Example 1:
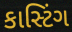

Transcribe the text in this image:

કાસ્ટિંગ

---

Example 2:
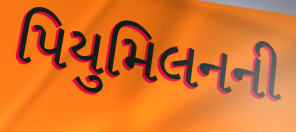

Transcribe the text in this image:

પિયુમિલનની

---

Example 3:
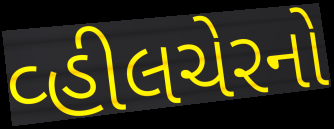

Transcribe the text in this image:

વ્હીલચેરનો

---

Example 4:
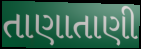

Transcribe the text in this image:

તાણાતાણી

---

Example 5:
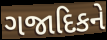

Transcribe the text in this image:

ગજાદિકને